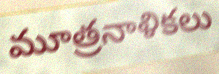
మూత్రనాళికలు